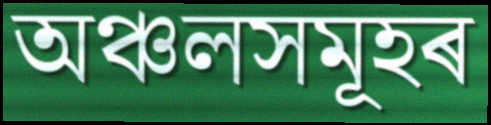
অঞ্চলসমূহৰ